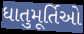
ધાતુમૂર્તિઓ